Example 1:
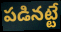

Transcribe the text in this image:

పడినట్టే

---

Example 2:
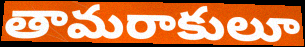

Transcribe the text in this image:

తామరాకులూ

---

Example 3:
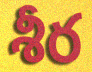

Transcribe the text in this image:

శీర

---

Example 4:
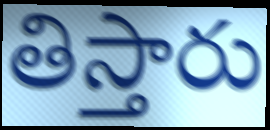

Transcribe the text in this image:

తిస్తారు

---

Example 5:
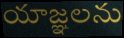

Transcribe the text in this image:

యాజ్ఞలను